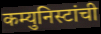
कम्युनिस्टांची